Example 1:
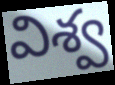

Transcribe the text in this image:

విశ్వ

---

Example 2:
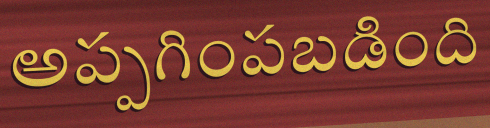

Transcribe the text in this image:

అప్పగింపబడింది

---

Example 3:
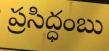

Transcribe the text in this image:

ప్రసిద్ధంబు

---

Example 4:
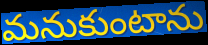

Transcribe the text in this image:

మనుకుంటాను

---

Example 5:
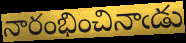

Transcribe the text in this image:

నారంభించినాఁడు